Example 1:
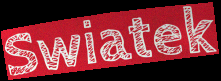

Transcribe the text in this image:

Swiatek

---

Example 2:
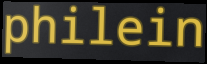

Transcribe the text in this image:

philein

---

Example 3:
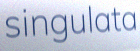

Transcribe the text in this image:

singulata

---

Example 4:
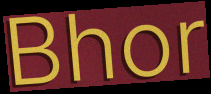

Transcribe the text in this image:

Bhor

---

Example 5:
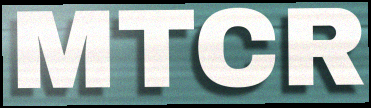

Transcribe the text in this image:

MTCR